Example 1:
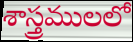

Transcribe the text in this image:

శాస్త్రములలో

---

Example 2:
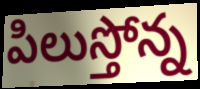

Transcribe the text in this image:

పిలుస్తోన్న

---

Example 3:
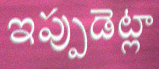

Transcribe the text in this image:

ఇప్పుడెట్లా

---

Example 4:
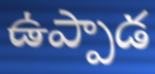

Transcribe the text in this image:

ఉప్పాడ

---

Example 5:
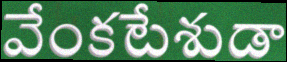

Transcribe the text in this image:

వేంకటేశుడా